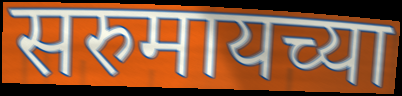
सरुमायच्या